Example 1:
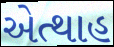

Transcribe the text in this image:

એત્થાહ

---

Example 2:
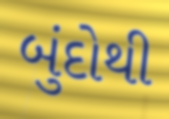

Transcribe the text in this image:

બુંદોથી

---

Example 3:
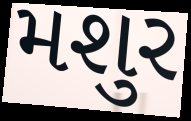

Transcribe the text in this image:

મશુર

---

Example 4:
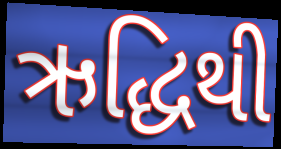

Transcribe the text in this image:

ઋદ્ધિથી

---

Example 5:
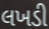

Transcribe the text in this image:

લખડી